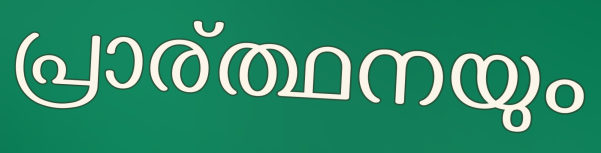
പ്രാര്ത്ഥനയും